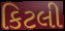
કિટલી